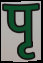
पृ